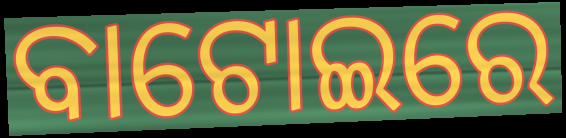
ବାଟୋଇରେ